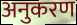
अनुकरण